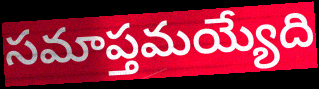
సమాప్తమయ్యేది